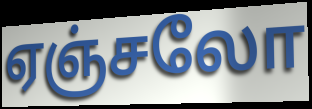
ஏஞ்சலோ